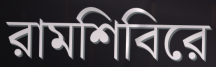
রামশিবিরে